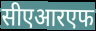
सीएआरएफ